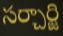
సర్చార్జి